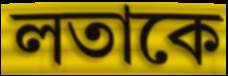
লতাকে